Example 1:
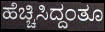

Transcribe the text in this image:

ಹೆಚ್ಚಿಸಿದ್ದಂತೂ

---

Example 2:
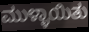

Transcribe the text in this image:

ಮುಳ್ಳಾಯಿತು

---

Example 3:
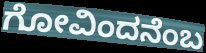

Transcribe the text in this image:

ಗೋವಿಂದನೆಂಬ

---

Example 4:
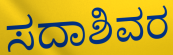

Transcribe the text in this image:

ಸದಾಶಿವರ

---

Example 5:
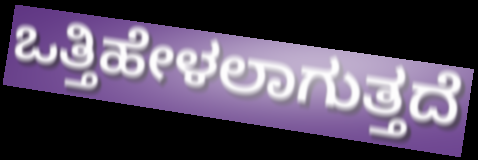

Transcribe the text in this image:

ಒತ್ತಿಹೇಳಲಾಗುತ್ತದೆ